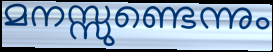
മനസ്സുണ്ടെന്നും